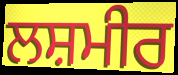
ਲਸ਼ਮੀਰ